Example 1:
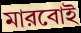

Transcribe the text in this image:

মারবোই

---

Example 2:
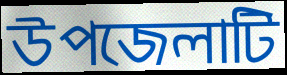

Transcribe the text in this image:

উপজেলাটি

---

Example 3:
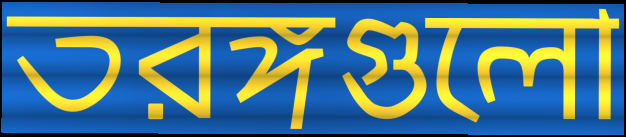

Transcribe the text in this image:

তরঙ্গগুলো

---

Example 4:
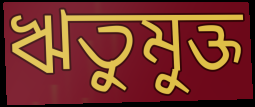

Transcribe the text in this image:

ঋতুমুক্ত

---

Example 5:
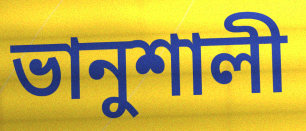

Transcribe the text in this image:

ভানুশালী